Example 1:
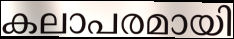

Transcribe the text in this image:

കലാപരമായി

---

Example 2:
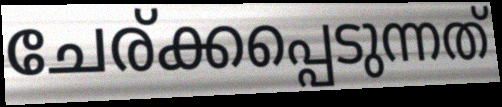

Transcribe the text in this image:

ചേര്ക്കപ്പെടുന്നത്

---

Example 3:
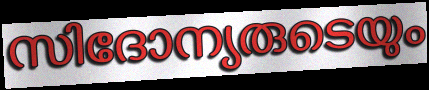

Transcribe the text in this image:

സിദോന്യരുടെയും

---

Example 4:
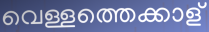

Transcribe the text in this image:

വെള്ളത്തെക്കാള്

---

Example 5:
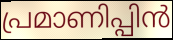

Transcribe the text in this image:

പ്രമാണിപ്പിൻ